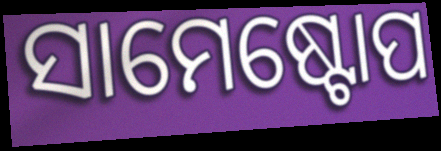
ସାମେଷ୍ଟୋପ